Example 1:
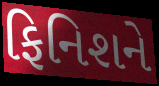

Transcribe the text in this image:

ફિનિશને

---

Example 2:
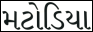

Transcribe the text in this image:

મટોડિયા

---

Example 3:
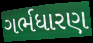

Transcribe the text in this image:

ગર્ભધારણ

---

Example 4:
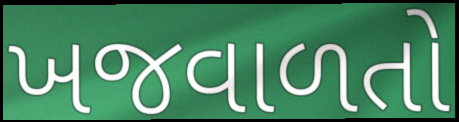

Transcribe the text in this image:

ખજવાળતો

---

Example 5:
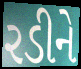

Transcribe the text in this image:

રડીને